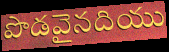
పొడవైనదియు